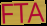
FTA